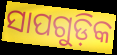
ସାପଗୁଡ଼ିକ